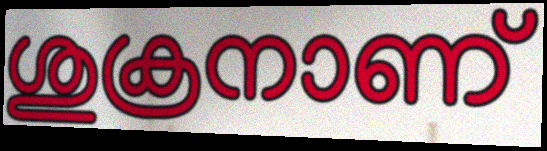
ശുക്രനാണ്